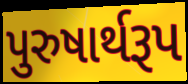
પુરુષાર્થરૂપ